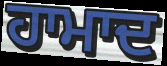
ਹਾਮਾਦ